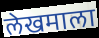
लेखमाला